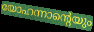
യോഹന്നാന്റെയും